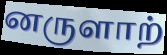
னருளாற்